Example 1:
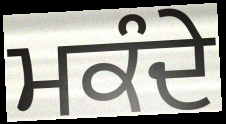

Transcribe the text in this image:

ਮਕੰਦੇ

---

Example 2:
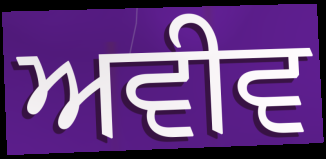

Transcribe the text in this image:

ਅਵੀਵ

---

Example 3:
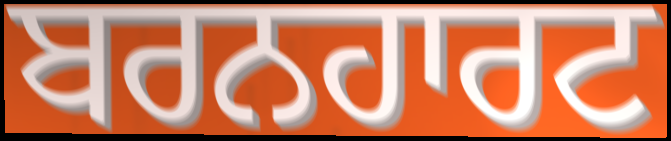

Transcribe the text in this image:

ਬਰਨਹਾਰਟ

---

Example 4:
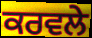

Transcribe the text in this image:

ਕਰਵਲੇ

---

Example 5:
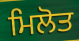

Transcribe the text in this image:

ਮਿਲੋਤ